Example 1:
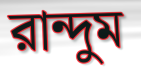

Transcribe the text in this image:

রান্দুম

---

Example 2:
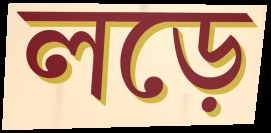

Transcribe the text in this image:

লড়ে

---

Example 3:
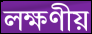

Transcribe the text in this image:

লক্ষণীয়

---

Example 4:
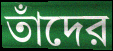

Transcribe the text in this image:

তাঁদের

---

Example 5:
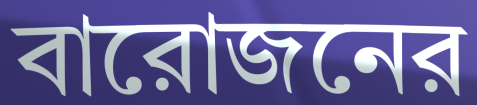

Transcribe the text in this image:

বারোজনের